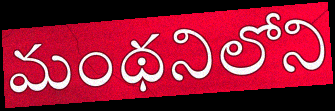
మంథనిలోని